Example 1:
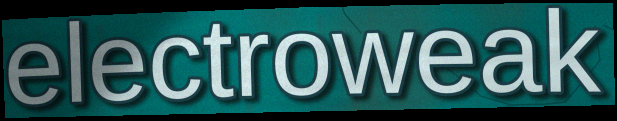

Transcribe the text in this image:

electroweak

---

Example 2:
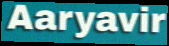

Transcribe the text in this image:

Aaryavir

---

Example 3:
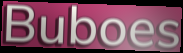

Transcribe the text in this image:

Buboes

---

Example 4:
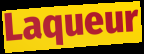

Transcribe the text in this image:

Laqueur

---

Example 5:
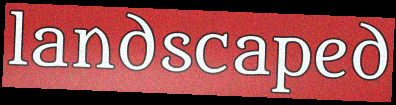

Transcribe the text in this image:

landscaped